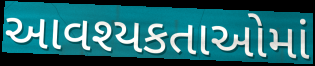
આવશ્યકતાઓમાં